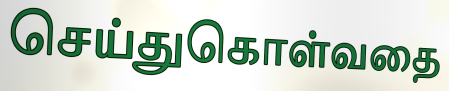
செய்துகொள்வதை